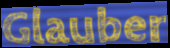
Glauber